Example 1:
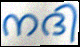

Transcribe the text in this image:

നദി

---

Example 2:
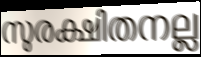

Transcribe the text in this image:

സുരക്ഷിതനല്ല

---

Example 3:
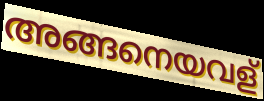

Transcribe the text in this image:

അങ്ങനെയവള്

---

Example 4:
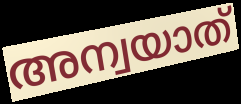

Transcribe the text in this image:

അന്വയാത്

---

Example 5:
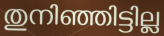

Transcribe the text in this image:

തുനിഞ്ഞിട്ടില്ല